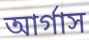
আর্গাস